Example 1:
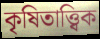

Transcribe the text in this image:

কৃষিতাত্ত্বিক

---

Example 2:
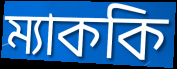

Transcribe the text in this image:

ম্যাককি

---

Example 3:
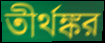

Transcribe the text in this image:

তীর্থঙ্কর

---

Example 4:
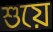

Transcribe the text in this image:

শুয়ে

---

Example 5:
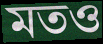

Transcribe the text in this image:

মতও